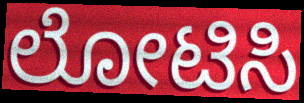
ಲೋಟಿಸಿ